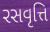
રસવૃત્તિ